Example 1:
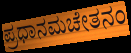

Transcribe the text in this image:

ಪ್ರಧಾನಮಚೇತನಂ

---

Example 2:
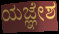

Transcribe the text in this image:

ಯಜ್ಞೇಶ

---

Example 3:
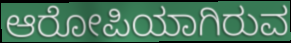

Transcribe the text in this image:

ಆರೋಪಿಯಾಗಿರುವ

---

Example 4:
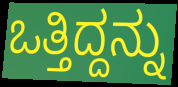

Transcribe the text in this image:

ಒತ್ತಿದ್ದನ್ನು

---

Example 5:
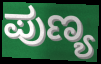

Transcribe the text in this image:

ಪುಣ್ಯ